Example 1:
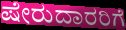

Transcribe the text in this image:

ಷೇರುದಾರರಿಗೆ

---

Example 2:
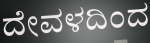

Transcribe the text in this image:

ದೇವಳದಿಂದ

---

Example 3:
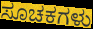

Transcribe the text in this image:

ಸೂಚಕಗಳು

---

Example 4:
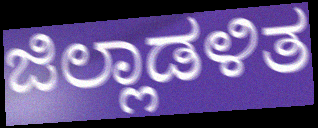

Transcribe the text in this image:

ಜಿಲ್ಲಾಡಳಿತ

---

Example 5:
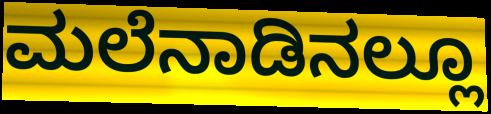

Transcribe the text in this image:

ಮಲೆನಾಡಿನಲ್ಲೂ